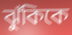
ঝুঁকিকে